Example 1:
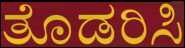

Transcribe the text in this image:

ತೊಡರಿಸಿ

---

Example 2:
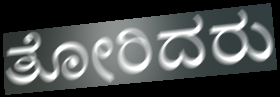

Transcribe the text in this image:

ತೋರಿದರು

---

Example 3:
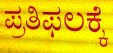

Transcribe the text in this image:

ಪ್ರತಿಫಲಕ್ಕೆ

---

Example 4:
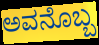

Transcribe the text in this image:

ಅವನೊಬ್ಬ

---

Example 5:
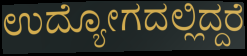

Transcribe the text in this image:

ಉದ್ಯೋಗದಲ್ಲಿದ್ದರೆ